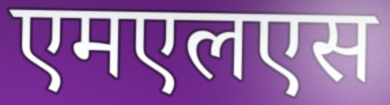
एमएलएस